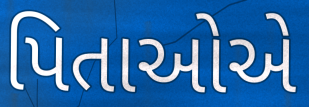
પિતાઓએ